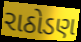
રાઠોડણ